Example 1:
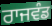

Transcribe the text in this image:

ਰਾਜਵੰਡ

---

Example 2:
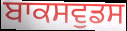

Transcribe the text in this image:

ਬਾਕਸਵੁਡਸ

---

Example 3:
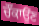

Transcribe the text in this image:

ਚੌਂਕਾਉਂਣ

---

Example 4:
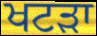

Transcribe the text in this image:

ਖਟੜਾ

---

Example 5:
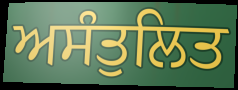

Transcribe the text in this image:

ਅਸੰਤੁਲਿਤ